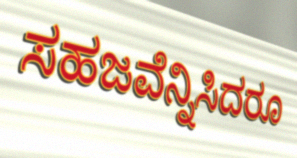
ಸಹಜವೆನ್ನಿಸಿದರೂ